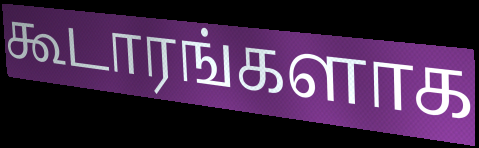
கூடாரங்களாக